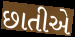
છાતીએ